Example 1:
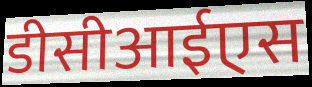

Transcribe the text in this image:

डीसीआईएस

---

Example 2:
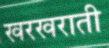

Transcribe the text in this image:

खरखराती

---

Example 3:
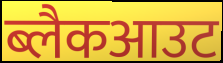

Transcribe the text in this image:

ब्लैकआउट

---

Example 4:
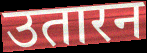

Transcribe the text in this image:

उतारन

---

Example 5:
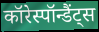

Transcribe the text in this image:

कॉरेस्पॉन्डैंट्स